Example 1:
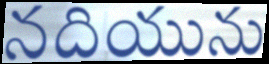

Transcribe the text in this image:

నదియును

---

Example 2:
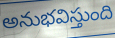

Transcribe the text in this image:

అనుభవిస్తుంది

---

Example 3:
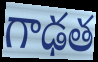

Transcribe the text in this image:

గాఢత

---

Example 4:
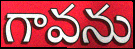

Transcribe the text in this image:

గావను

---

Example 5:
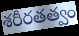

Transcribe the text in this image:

శరీరతత్వం